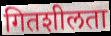
गितशीलता